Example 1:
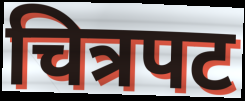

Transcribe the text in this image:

चित्रपट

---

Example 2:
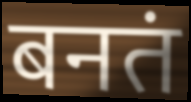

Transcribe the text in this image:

बनतं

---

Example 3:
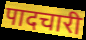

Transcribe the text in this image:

पादचारी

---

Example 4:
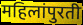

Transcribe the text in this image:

महिलांपुरती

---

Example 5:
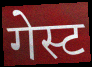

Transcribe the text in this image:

गेस्ट